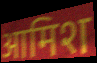
आमिश